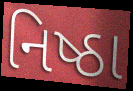
નિષ્ઠા